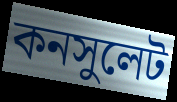
কনসুলেট